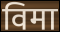
विमा